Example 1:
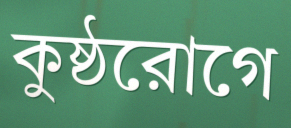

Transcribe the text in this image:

কুষ্ঠরোগে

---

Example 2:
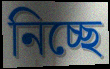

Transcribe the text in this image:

নিচ্ছে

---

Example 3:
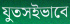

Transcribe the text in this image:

যুতসইভাবে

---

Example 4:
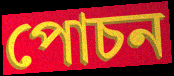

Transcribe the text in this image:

পোচন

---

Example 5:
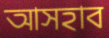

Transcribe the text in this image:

আসহাব